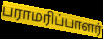
பராமரிப்பாளர்